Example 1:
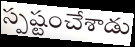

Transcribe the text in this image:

స్పష్టంచేశాడు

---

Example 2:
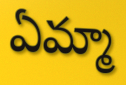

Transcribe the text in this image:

ఏమ్మా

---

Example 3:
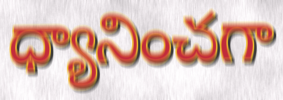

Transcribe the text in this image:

ధ్యానించగా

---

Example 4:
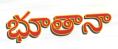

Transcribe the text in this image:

భూతానా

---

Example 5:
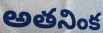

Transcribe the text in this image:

అతనింక